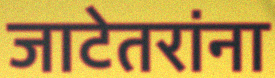
जाटेतरांना